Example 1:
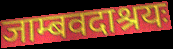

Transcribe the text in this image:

जाम्बवदाश्रयः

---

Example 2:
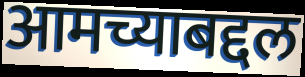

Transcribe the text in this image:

आमच्याबद्दल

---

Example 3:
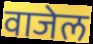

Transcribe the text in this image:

वाजेल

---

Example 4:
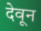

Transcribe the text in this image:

देवून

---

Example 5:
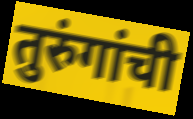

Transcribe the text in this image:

तुरुंगांची